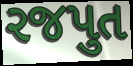
રજપુત